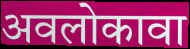
अवलोकावा